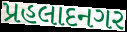
પ્રહલાદનગર